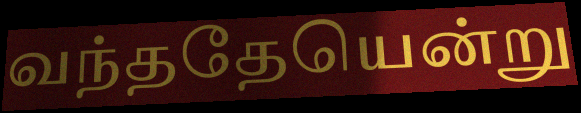
வந்ததேயென்று